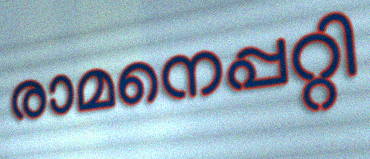
രാമനെപ്പറ്റി